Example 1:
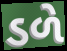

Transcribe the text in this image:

ડળે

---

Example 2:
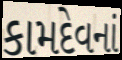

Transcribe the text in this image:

કામદેવનાં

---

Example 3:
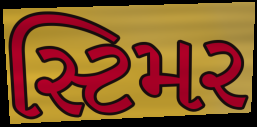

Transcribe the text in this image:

સ્ટિમર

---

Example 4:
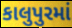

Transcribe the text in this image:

કાલુપુરમાં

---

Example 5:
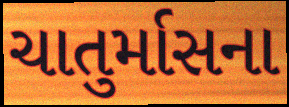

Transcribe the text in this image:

ચાતુર્માસના